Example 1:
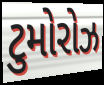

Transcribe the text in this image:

ટુમોરોઝ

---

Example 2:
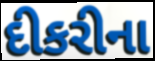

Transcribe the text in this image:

દીકરીના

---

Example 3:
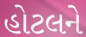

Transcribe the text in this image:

હોટલને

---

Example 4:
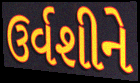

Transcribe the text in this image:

ઉર્વશીને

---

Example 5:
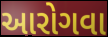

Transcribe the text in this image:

આરોગવા